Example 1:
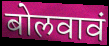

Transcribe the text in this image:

बोलवावं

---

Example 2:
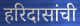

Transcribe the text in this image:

हरिदासांची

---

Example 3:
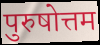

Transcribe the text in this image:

पुरुषोत्तम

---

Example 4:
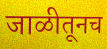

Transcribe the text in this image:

जाळीतूनच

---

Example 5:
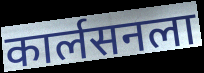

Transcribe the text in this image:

कार्लसनला